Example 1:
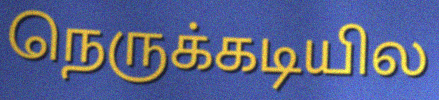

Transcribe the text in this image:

நெருக்கடியில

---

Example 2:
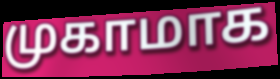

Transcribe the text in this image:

முகாமாக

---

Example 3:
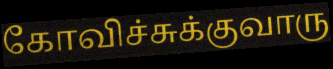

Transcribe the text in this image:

கோவிச்சுக்குவாரு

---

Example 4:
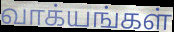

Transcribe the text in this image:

வாக்யங்கள்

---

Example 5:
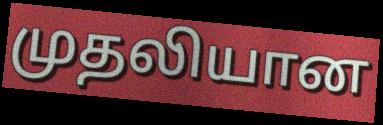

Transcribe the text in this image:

முதலியான